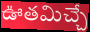
ఊతమిచ్చే